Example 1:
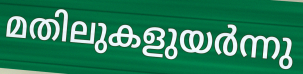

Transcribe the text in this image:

മതിലുകളുയർന്നു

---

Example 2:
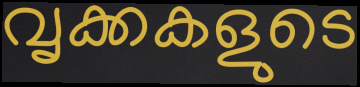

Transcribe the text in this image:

വൃക്കകളുടെ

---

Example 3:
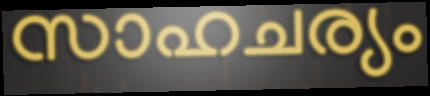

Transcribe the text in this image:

സാഹചര്യം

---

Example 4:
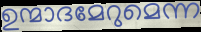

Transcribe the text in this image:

ഉന്മാദമേറുമെന്ന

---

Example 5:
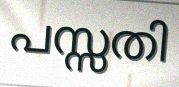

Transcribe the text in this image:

പസ്സതി